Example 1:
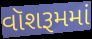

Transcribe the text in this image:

વૉશરૂમમાં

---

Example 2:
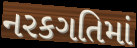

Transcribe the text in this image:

નરકગતિમાં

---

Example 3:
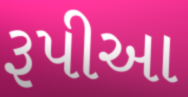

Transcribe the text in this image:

રૂપીઆ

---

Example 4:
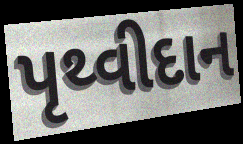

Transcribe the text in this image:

પૃથ્વીદાન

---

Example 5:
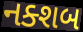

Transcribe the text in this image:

નક્શબ